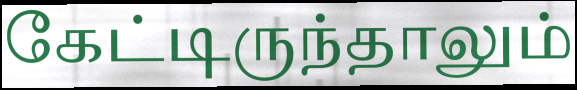
கேட்டிருந்தாலும்